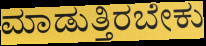
ಮಾಡುತ್ತಿರಬೇಕು